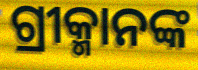
ଗ୍ରୀକ୍ମାନଙ୍କ